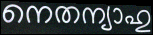
നെതന്യാഹു